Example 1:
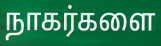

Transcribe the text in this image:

நாகர்களை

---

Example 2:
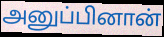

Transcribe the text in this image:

அனுப்பினான்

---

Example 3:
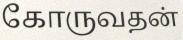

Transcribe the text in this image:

கோருவதன்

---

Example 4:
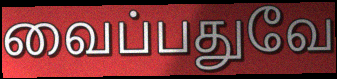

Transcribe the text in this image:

வைப்பதுவே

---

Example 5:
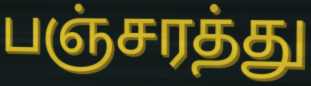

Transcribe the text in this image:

பஞ்சரத்து